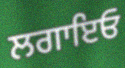
ਲਗਾਇਓ